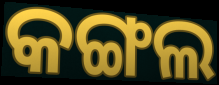
କଙ୍ଗଲ